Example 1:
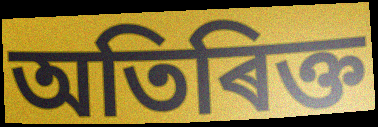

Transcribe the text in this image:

অতিৰিক্ত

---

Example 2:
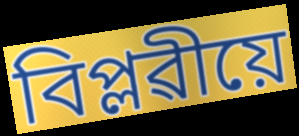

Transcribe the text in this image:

বিপ্লৱীয়ে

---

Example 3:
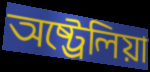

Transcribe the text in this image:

অষ্ট্ৰেলিয়া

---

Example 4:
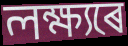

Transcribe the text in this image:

লক্ষ্যৰে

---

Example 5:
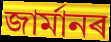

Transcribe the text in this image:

জাৰ্মানৰ